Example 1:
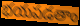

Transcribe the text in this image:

భయపడతాం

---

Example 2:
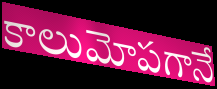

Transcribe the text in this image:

కాలుమోపగానే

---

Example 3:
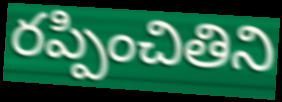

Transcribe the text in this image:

రప్పించితిని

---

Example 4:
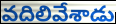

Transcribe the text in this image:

వదిలివేశాడు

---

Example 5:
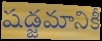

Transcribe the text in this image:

షడ్జమానికీ